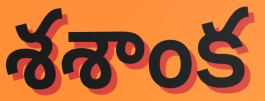
శశాంక